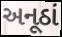
અનૂઠાં